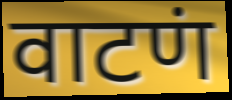
वाटणं